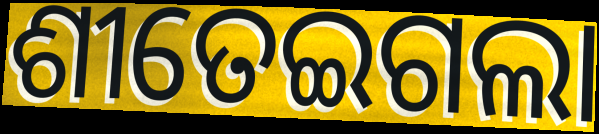
ଶୀତେଇଗଲା